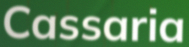
Cassaria